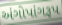
અંગોપાંગરૂપ